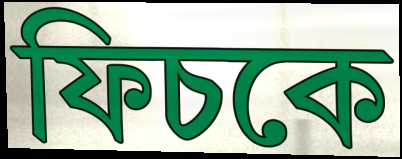
ফিচকে